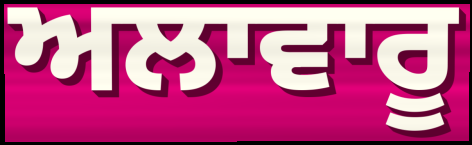
ਅਲਾਵਾਰੂ